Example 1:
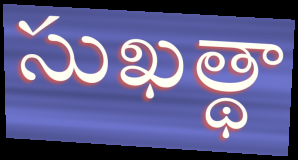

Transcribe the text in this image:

సుఖత్థా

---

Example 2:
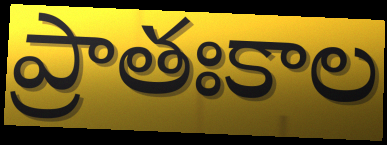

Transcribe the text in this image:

ప్రాతఃకాల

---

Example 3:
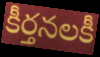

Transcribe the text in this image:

కీర్తనలకీ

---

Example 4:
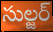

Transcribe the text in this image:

సుల్జర్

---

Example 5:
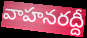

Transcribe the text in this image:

వాహనరద్దీ